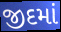
જીદમાં